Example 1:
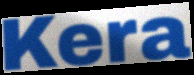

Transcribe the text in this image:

Kera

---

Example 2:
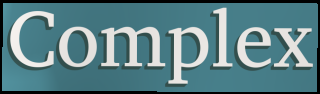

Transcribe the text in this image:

Complex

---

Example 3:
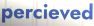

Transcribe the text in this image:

percieved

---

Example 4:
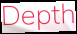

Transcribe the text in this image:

Depth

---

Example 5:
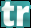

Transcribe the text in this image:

tr